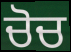
ਚੋਚ